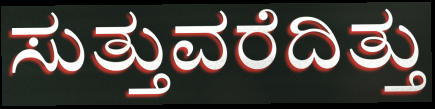
ಸುತ್ತುವರೆದಿತ್ತು